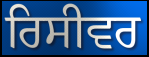
ਰਿਸੀਵਰ